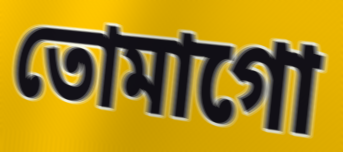
তোমাগো